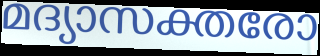
മദ്യാസക്തരോ